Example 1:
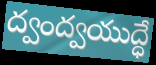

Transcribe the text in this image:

ద్వంద్వయుద్ధే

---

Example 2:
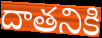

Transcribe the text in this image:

దాతనికి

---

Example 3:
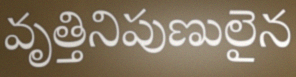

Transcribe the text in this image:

వృత్తినిపుణులైన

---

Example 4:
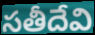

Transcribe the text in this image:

సతీదేవి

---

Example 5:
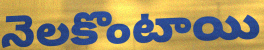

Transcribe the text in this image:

నెలకొంటాయి